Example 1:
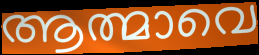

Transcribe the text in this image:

ആത്മാവെ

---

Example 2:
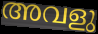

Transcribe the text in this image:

അവളു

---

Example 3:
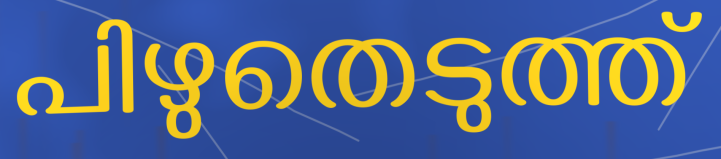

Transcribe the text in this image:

പിഴുതെടുത്ത്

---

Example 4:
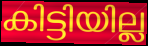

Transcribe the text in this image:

കിട്ടിയില്ല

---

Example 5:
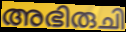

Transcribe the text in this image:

അഭിരുചി